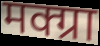
मक्ग्रा